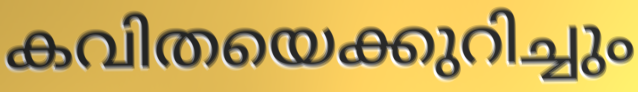
കവിതയെക്കുറിച്ചും